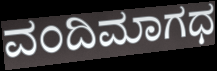
ವಂದಿಮಾಗಧ